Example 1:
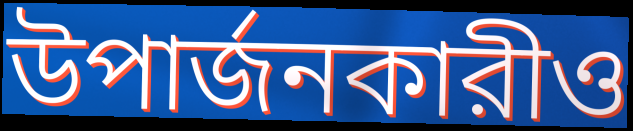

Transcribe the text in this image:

উপার্জনকারীও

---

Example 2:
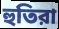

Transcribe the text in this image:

হুতিরা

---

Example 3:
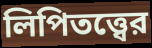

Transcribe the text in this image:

লিপিতত্ত্বের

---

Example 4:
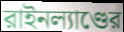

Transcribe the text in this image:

রাইনল্যাণ্ডের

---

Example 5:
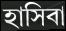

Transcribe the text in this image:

হাসিবা